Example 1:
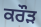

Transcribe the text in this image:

ਕਰੌੜ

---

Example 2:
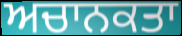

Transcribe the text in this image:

ਅਚਾਨਕਤਾ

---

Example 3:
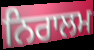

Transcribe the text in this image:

ਨਿਰਾਲਮ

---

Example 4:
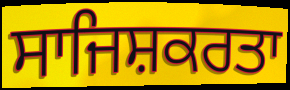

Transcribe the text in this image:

ਸਾਜਿਸ਼ਕਰਤਾ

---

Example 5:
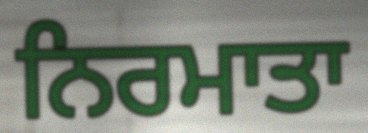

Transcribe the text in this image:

ਨਿਰਮਾਤਾ